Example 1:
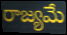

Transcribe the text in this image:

రాజ్యమే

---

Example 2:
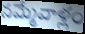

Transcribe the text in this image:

నమ్మేవాళ్లం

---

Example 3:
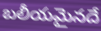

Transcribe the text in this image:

బలీయమైనదే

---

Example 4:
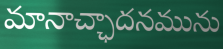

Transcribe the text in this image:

మానాచ్ఛాదనమును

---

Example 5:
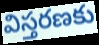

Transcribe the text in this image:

విస్తరణకు